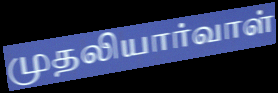
முதலியார்வாள்